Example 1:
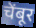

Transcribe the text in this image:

चेंबूर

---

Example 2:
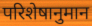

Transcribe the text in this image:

परिशेषानुमान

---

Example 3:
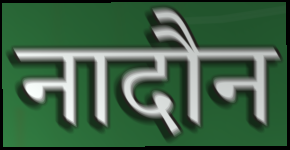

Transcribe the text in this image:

नादौन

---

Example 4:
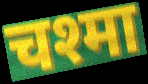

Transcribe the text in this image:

चश्मा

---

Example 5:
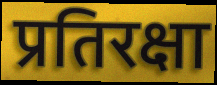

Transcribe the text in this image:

प्रतिरक्षा